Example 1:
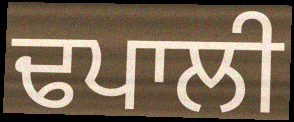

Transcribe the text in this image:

ਢਪਾਲੀ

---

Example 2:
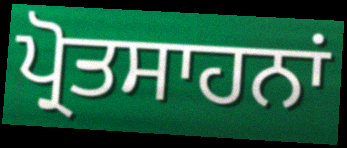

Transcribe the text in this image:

ਪ੍ਰੋਤਸਾਹਨਾਂ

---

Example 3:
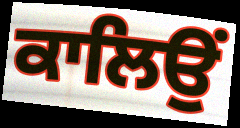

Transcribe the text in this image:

ਕਾਲਿਉਂ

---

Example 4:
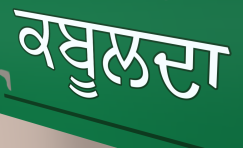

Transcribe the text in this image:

ਕਬੂਲਦਾ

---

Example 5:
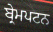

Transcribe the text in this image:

ਬ੍ਰੇਮਪਟਨ